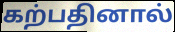
கற்பதினால்